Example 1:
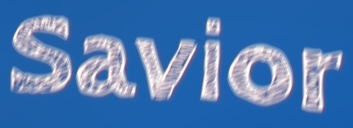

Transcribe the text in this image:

Savior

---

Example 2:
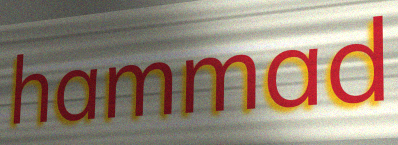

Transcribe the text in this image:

hammad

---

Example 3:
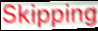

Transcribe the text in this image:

Skipping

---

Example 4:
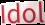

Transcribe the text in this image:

Idol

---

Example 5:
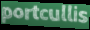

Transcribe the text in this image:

portcullis